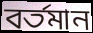
বৰ্তমান